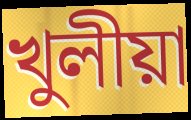
খুলীয়া